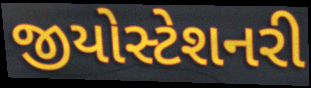
જીયોસ્ટેશનરી